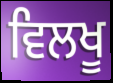
ਵਿਲਖੂ